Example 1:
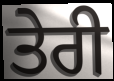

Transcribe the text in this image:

ਤੇਰੀ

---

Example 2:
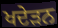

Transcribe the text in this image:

ਖਦੇੜਨ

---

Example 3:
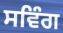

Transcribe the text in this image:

ਸਵਿੰਗ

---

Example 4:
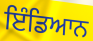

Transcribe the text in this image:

ਇੰਡਿਆਨ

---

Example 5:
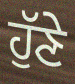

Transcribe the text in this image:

ਹੁੱਣੇ